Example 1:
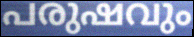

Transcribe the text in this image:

പരുഷവും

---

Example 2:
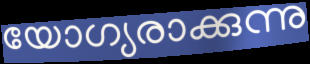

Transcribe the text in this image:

യോഗ്യരാക്കുന്നു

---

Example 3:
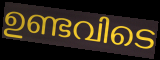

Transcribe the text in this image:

ഉണ്ടവിടെ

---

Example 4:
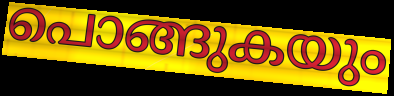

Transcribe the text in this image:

പൊങ്ങുകയും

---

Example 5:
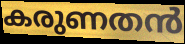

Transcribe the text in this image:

കരുണതൻ